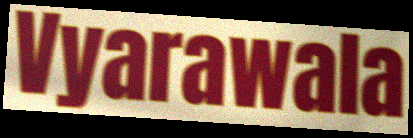
Vyarawala